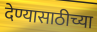
देण्यासाठीच्या